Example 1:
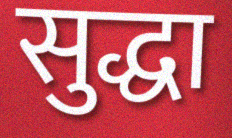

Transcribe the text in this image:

सुद्धा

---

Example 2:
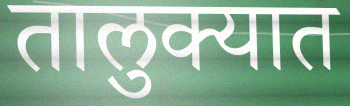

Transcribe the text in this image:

तालुक्यात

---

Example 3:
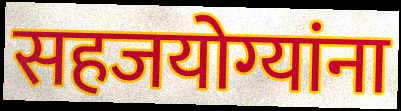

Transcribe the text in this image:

सहजयोग्यांना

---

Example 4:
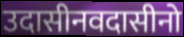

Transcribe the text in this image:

उदासीनवदासीनो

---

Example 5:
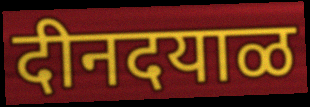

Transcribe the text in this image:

दीनदयाळ